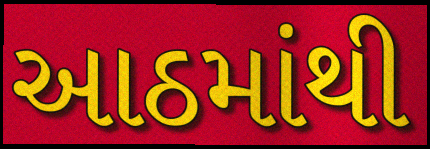
આઠમાંથી